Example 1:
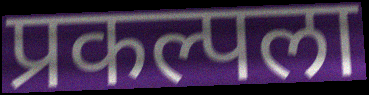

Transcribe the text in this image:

प्रकल्पला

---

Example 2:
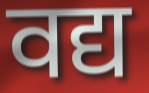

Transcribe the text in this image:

वद्य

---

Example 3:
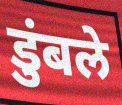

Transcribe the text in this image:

डुंबले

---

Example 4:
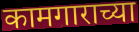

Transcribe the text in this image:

कामगाराच्या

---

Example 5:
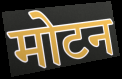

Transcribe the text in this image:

मोटन